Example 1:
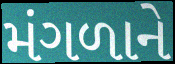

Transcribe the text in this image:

મંગળાને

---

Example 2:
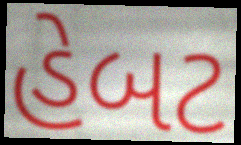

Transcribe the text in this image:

હેબટ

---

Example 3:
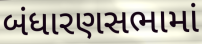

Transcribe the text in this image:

બંધારણસભામાં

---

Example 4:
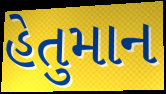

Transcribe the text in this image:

હેતુમાન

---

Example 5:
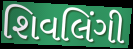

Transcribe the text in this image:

શિવલિંગી